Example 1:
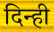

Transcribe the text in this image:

दिन्ही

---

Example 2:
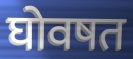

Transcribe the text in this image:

घोवषत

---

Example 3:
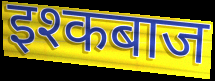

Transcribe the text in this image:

इश्कबाज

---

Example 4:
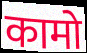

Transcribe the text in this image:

कामो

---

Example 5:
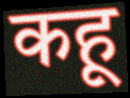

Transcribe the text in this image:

कहू